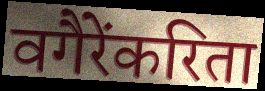
वगैरेंकरिता